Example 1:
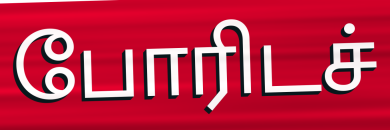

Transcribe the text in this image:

போரிடச்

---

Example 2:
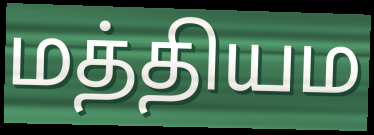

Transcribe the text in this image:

மத்தியம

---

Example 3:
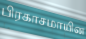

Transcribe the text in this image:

பிரகாசமாயின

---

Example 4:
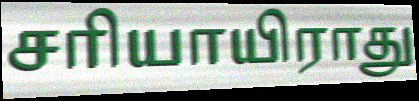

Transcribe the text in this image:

சரியாயிராது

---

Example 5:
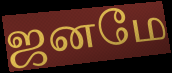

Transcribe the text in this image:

ஜனமே